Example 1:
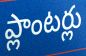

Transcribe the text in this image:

ప్లాంటర్లు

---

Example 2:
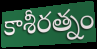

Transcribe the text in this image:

కాశీరత్నం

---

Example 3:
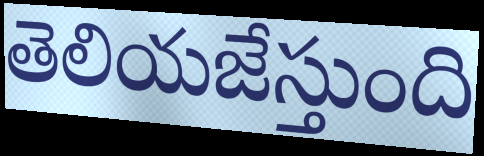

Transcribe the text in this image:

తెలియజేస్తుంది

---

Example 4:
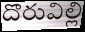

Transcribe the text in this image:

దొరువిల్లి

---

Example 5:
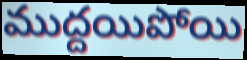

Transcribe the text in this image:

ముద్దయిపోయి